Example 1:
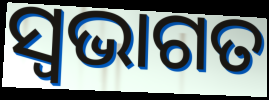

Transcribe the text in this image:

ସ୍ଵଭାଗତ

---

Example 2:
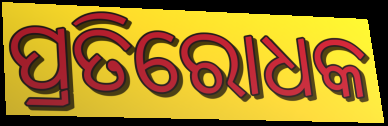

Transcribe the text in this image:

ପ୍ରତିରୋଧକ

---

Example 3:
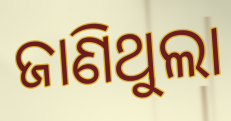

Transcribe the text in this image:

ଜାଣିଥୁଲା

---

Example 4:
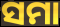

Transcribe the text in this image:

ସମା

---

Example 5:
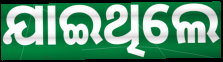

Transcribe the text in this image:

ଯାଇଥିଲେ